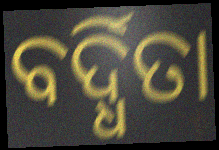
ବର୍ଦ୍ଧିତା